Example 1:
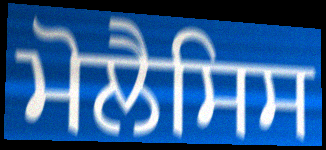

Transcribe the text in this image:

ਮੋਲੈਸਿਸ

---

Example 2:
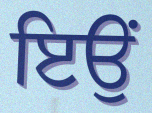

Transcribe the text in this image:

ਇਉਂ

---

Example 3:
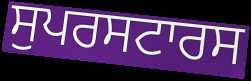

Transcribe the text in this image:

ਸੁਪਰਸਟਾਰਸ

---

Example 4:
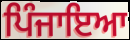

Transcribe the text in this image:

ਪਿੰਜਾਇਆ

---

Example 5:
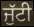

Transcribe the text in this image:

ਜੁੱਟੀ